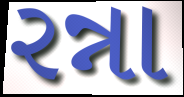
રન્ના